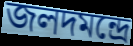
জলদমন্দ্রে